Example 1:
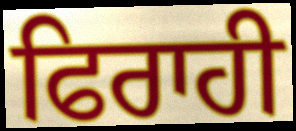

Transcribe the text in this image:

ਫਿਰਾਹੀ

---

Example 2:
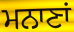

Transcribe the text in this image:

ਮਨਾਣਾਂ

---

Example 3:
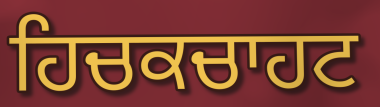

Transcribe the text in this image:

ਹਿਚਕਚਾਹਟ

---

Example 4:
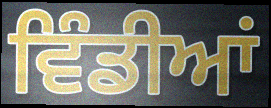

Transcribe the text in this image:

ਵਿੰਡੀਆਂ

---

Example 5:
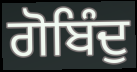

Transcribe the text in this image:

ਗੋਬਿੰਦੁ